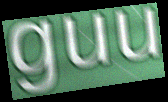
guu